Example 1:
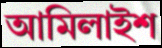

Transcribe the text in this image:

আমিলাইশ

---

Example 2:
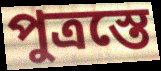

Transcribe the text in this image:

পুত্রস্তে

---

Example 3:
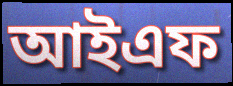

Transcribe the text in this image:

আইএফ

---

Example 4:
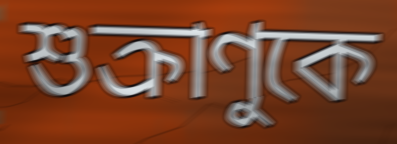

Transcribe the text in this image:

শুক্রাণুকে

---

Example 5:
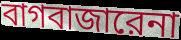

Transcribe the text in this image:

বাগবাজারেনা